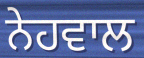
ਨੇਹਵਾਲ